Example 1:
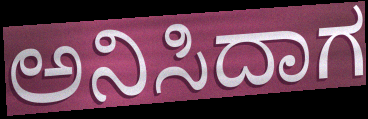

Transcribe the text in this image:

ಅನಿಸಿದಾಗ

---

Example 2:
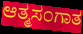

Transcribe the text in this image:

ಆತ್ಮಸಂಗಾತ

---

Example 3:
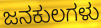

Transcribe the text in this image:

ಜನಕುಲಗಳು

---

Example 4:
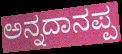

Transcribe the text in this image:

ಅನ್ನದಾನಪ್ಪ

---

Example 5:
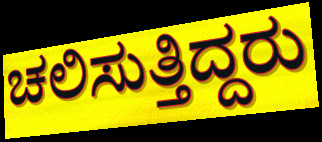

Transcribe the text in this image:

ಚಲಿಸುತ್ತಿದ್ದರು